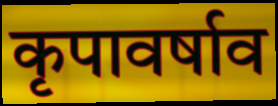
कृपावर्षाव